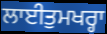
ਲਾਈਤੁਮਖਰ੍ਹਾ